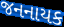
જનનાયક